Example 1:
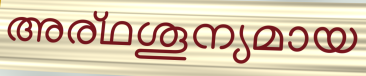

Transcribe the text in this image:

അര്ഥശൂന്യമായ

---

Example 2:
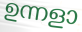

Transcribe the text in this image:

ഉന്നളാ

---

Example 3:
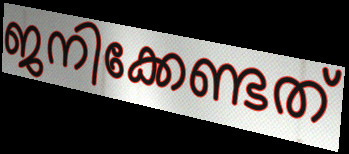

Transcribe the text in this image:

ജനിക്കേണ്ടത്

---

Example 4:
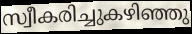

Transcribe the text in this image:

സ്വീകരിച്ചുകഴിഞ്ഞു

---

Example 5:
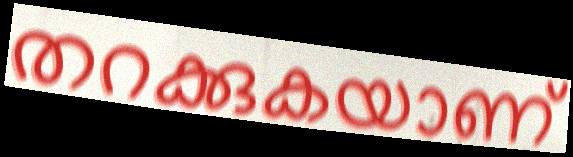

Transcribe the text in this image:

തറക്കുകയാണ്